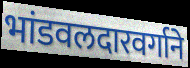
भांडवलदारवर्गाने